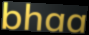
bhaa